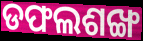
ଡଫଲଶଙ୍ଖ